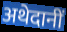
अथेदानीं